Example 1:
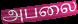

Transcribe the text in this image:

அபலை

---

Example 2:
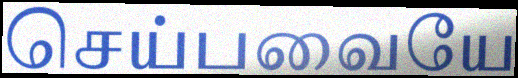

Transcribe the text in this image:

செய்பவையே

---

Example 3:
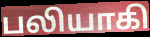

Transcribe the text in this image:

பலியாகி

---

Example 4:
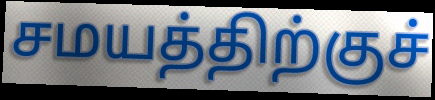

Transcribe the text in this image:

சமயத்திற்குச்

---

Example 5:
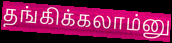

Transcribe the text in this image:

தங்கிக்கலாம்னு